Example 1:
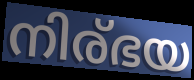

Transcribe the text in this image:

നിര്ഭയ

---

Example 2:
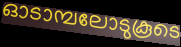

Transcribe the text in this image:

ഓടാമ്പലോടുകൂടെ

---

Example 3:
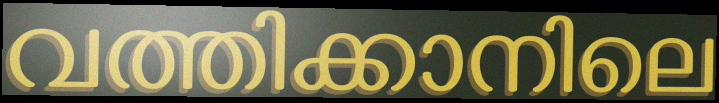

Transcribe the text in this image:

വത്തിക്കാനിലെ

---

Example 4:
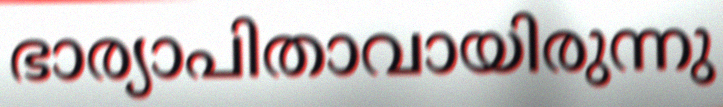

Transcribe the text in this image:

ഭാര്യാപിതാവായിരുന്നു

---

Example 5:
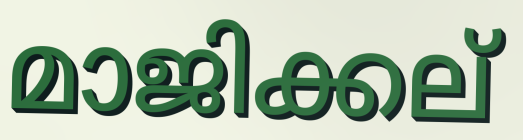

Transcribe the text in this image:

മാജിക്കല്